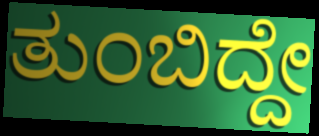
ತುಂಬಿದ್ದೇ